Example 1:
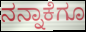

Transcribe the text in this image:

ನನ್ನಾಕೆಗೂ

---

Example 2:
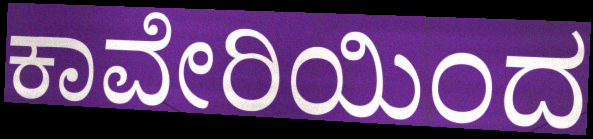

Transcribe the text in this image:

ಕಾವೇರಿಯಿಂದ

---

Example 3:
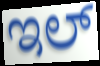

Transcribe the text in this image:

ಇಲ್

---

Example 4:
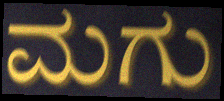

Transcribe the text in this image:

ಮಗು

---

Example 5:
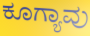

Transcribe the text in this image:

ಕೂಗ್ಯಾವು